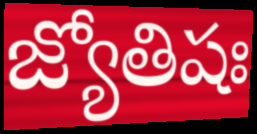
జ్యోతిషః